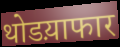
थोडय़ाफार